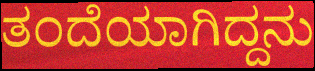
ತಂದೆಯಾಗಿದ್ದನು